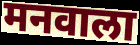
मनवाला